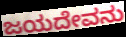
ಜಯದೇವನು